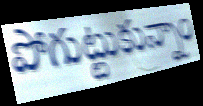
పోగుట్టుకున్నాం